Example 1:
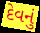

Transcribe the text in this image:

દેવનું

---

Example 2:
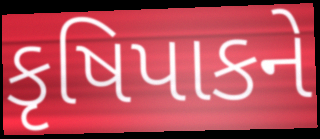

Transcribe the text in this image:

કૃષિપાકને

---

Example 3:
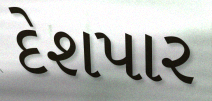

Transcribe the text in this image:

દેશપાર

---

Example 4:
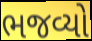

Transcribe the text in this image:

ભજવ્યો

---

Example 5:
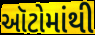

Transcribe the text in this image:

ઑટોમાંથી